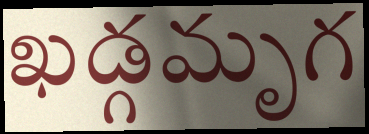
ఖడ్గమృగ